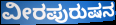
ವೀರಪುರುಷನ